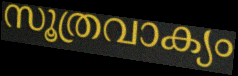
സൂത്രവാക്യം